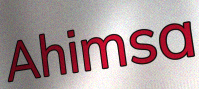
Ahimsa